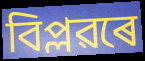
বিপ্লৱৰে